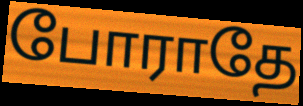
போராதே